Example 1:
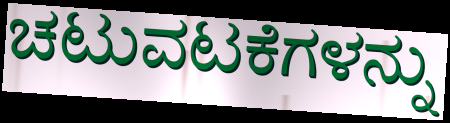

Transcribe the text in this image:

ಚಟುವಟಕೆಗಳನ್ನು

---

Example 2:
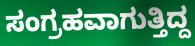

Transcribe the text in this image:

ಸಂಗ್ರಹವಾಗುತ್ತಿದ್ದ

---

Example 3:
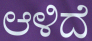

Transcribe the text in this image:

ಆಳಿದೆ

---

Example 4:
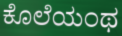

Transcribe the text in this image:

ಕೊಲೆಯಂಥ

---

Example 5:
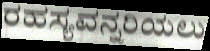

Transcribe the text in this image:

ರಹಸ್ಯವನ್ನರಿಯಲು